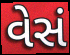
વેસં